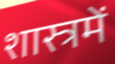
शास्त्रमें